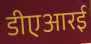
डीएआरई